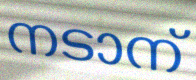
നടാന്